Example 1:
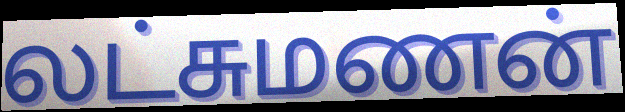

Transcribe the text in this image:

லட்சுமணன்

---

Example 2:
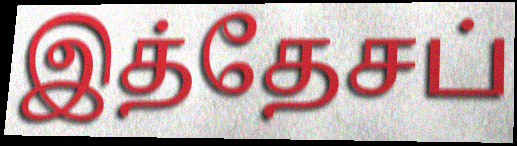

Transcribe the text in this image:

இத்தேசப்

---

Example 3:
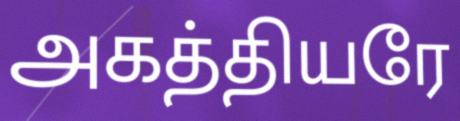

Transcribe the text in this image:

அகத்தியரே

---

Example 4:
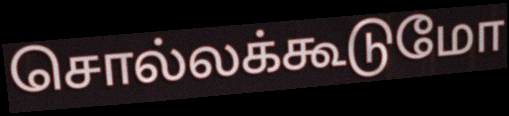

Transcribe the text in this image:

சொல்லக்கூடுமோ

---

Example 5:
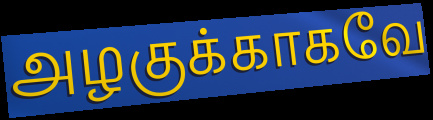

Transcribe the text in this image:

அழகுக்காகவே